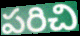
పరిచి